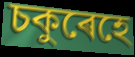
চকুৰেহে